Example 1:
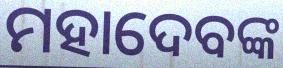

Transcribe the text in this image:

ମହାଦେବଙ୍କ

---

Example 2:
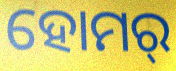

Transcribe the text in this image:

ହୋମର୍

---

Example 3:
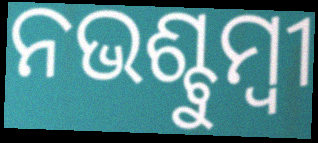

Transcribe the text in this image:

ନଭଶ୍ଚୁମ୍ବୀ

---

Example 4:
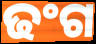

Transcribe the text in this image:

ଢଂଗ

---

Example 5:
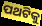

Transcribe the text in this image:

ପଥଟିକୁ